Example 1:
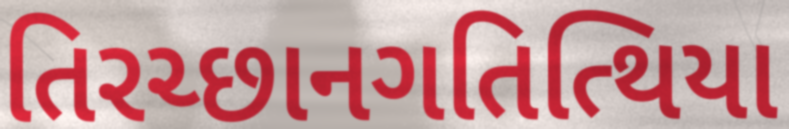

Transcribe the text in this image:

તિરચ્છાનગતિત્થિયા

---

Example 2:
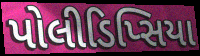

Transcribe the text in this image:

પોલીડિપ્સિયા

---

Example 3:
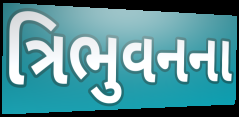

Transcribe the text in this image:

ત્રિભુવનના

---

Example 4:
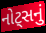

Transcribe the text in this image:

નોટ્સનું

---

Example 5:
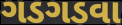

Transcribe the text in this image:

ગડગડવા